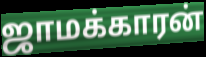
ஜாமக்காரன்